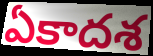
ఏకాదశ